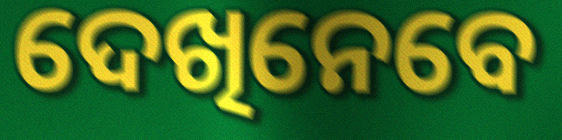
ଦେଖିନେବେ